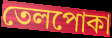
তেলপোকা